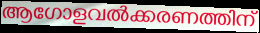
ആഗോളവൽക്കരണത്തിന്